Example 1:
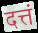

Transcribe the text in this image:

दत्तं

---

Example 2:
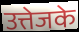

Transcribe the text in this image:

उत्तेजके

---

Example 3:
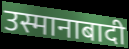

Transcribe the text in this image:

उस्मानाबादी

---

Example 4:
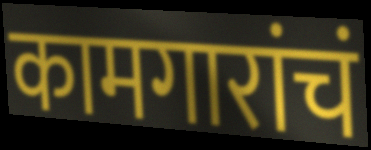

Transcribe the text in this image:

कामगारांचं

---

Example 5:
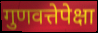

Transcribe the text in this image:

गुणवत्तेपेक्षा